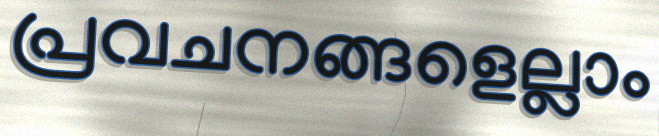
പ്രവചനങ്ങളെല്ലാം